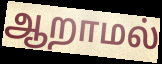
ஆறாமல்